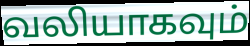
வலியாகவும்